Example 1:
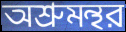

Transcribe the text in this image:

অশ্রুমন্থর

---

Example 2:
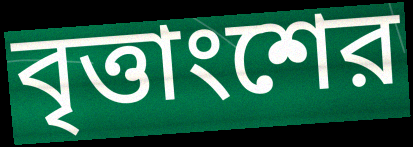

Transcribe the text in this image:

বৃত্তাংশের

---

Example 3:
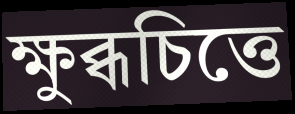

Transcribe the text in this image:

ক্ষুব্ধচিত্তে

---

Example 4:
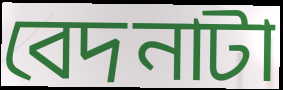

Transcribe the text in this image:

বেদনাটা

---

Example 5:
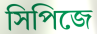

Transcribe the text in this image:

সিপিজে